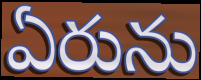
ఏరును